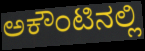
ಅಕೌಂಟಿನಲ್ಲಿ